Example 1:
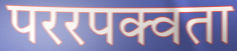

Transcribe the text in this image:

पररपक्वता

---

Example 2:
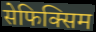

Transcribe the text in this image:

सेफिक्सिम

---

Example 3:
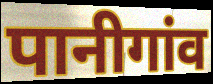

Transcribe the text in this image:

पानीगांव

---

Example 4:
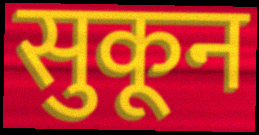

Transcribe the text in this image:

सुकून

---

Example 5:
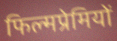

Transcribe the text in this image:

फिल्मप्रेमियों